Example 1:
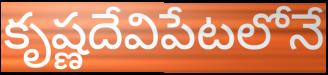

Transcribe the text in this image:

కృష్ణదేవిపేటలోనే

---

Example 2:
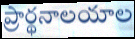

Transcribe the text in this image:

ప్రార్థనాలయాల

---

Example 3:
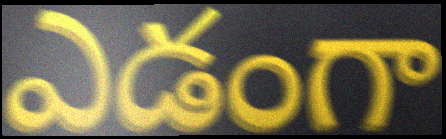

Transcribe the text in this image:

ఎడంగా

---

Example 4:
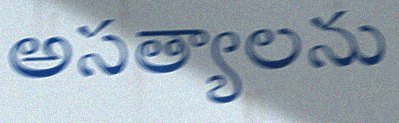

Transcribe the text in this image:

అసత్యాలను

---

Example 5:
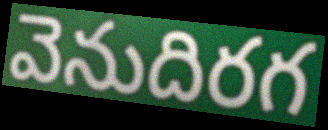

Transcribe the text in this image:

వెనుదిరగ